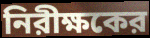
নিরীক্ষকের